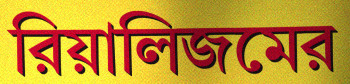
রিয়ালিজমের